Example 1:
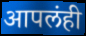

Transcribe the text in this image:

आपलंही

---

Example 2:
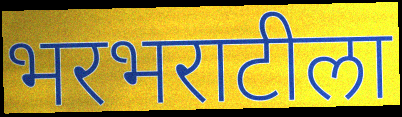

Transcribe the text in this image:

भरभराटीला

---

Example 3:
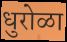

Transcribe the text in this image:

धुरोळा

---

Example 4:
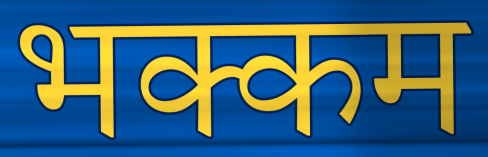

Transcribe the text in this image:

भक्‍कम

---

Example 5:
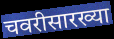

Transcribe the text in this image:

चवरीसारख्या